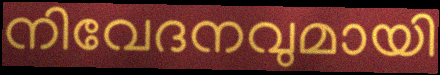
നിവേദനവുമായി